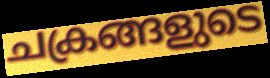
ചക്രങ്ങളുടെ